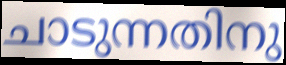
ചാടുന്നതിനു